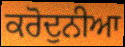
ਕਰੋਦੁਨੀਆ